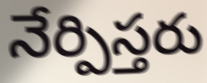
నేర్పిస్తరు